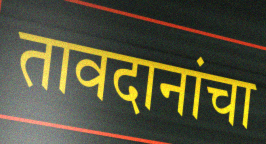
तावदानांचा